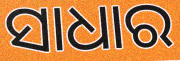
ସାଧାର